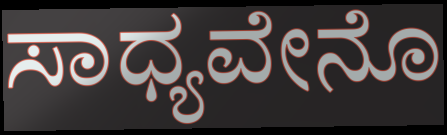
ಸಾಧ್ಯವೇನೊ